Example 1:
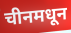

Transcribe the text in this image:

चीनमधून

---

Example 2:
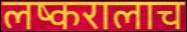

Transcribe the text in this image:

लष्करालाच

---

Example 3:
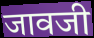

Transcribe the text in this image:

जावजी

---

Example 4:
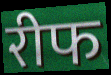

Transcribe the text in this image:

रीफ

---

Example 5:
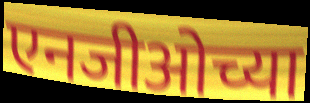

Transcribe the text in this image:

एनजीओच्या